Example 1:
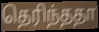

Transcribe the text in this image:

தெரிந்ததா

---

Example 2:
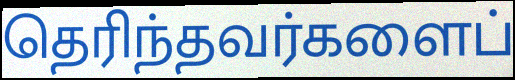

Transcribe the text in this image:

தெரிந்தவர்களைப்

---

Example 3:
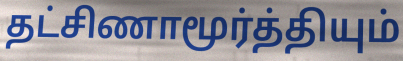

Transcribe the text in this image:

தட்சிணாமூர்த்தியும்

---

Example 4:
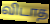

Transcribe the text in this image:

விடாத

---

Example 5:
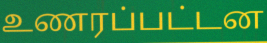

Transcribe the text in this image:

உணரப்பட்டன